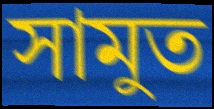
সামুত